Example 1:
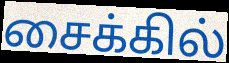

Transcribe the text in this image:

சைக்கில்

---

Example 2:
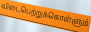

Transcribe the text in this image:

விடைபெற்றுக்கொள்ளும்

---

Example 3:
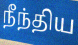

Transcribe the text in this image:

நீந்திய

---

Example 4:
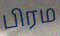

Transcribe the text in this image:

பிரம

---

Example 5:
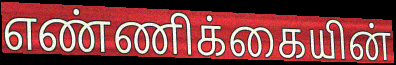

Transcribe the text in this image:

எண்ணிக்கையின்